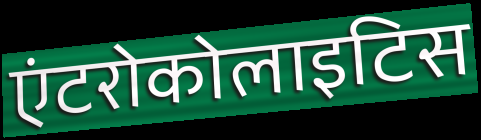
एंटरोकोलाइटिस